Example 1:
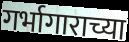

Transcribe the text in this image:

गर्भागाराच्या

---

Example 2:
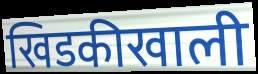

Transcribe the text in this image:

खिडकीखाली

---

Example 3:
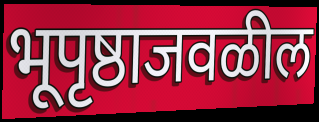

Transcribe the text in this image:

भूपृष्ठाजवळील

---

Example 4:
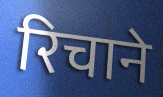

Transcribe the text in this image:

रिचाने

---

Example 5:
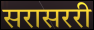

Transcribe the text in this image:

सरासररी